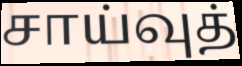
சாய்வுத்